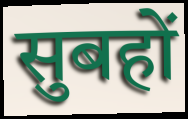
सुबहों